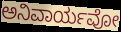
ಅನಿವಾರ್ಯವೋ